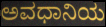
ಅವಧಾನಿಯ